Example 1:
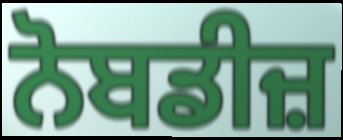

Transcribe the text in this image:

ਨੋਬਡੀਜ਼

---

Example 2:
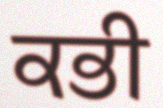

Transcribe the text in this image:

ਕਭੀ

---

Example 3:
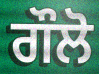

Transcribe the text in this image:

ਗੌਲੋ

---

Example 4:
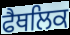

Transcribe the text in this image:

ਫੈਥਲਿਕ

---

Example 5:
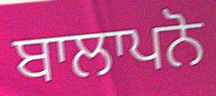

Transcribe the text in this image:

ਬਾਲਾਪਨੋ